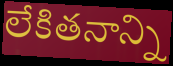
లేకితనాన్ని